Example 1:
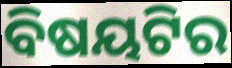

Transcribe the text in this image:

ବିଷୟଟିର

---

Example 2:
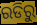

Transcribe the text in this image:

ରଡିରୁ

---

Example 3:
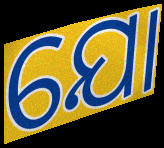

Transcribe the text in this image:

ଯୋ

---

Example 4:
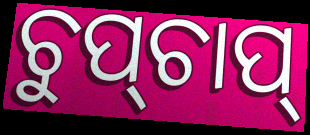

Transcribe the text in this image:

ଚୁପ୍‌ଚାପ୍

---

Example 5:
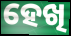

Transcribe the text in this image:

ହେଖି